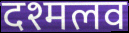
दश्मलव